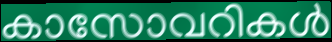
കാസോവറികൾ